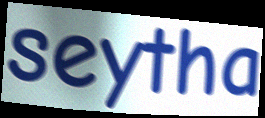
seytha